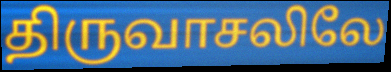
திருவாசலிலே